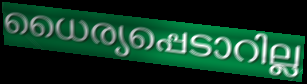
ധൈര്യപ്പെടാറില്ല